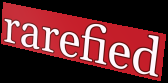
rarefied